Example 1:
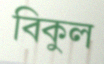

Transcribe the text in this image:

বিকুল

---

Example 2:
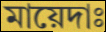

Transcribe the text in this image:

মায়েদাঃ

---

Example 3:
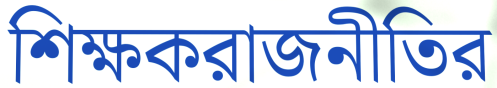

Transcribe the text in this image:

শিক্ষকরাজনীতির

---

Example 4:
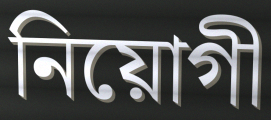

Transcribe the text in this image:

নিয়োগী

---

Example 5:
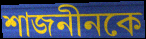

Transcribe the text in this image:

শাজনীনকে